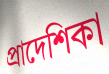
প্রাদেশিকা